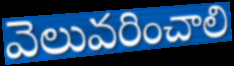
వెలువరించాలి